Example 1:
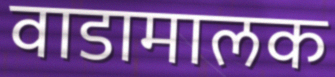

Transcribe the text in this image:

वाडामालक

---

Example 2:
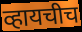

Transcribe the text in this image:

व्हायचीच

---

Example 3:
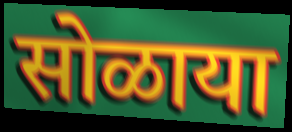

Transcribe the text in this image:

सोळाया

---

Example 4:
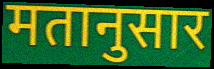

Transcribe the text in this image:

मतानुसार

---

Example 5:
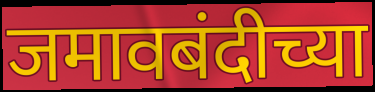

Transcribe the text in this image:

जमावबंदीच्या